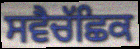
ਸਵੈਚੱਛਿਕ